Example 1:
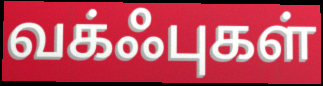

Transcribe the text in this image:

வக்ஃபுகள்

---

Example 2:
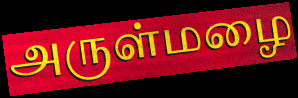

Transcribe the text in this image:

அருள்மழை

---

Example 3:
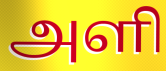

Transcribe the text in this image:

அளி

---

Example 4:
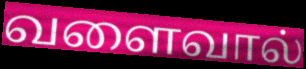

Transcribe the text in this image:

வளைவால்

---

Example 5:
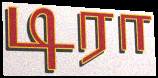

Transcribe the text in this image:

டிரா